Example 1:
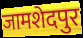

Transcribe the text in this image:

जामशेदपुर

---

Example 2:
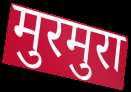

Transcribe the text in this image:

मुरमुरा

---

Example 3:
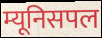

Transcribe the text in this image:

म्यूनिसपल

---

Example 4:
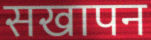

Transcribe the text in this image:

सखापन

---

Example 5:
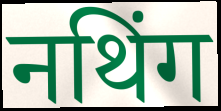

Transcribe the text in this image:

नथिंग